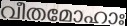
വീതമോഹാഃ